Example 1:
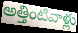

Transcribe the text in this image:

అత్తింటివాళ్లు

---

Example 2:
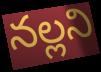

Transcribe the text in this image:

నల్లని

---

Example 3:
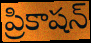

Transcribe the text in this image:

ప్రికాషన్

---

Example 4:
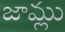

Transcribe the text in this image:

జామ్లు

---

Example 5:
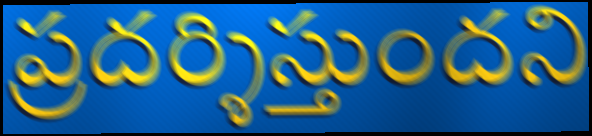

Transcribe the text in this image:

ప్రదర్శిస్తుందని